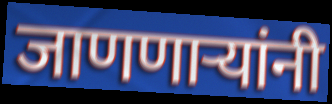
जाणणाऱ्यांनी